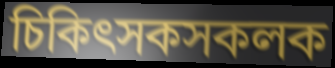
চিকিৎসকসকলক